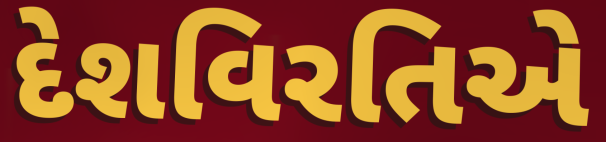
દેશવિરતિએ